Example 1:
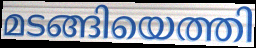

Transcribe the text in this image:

മടങ്ങിയെത്തി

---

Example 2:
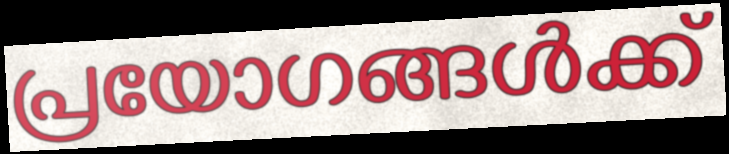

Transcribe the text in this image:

പ്രയോഗങ്ങൾക്ക്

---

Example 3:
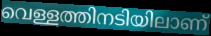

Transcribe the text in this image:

വെള്ളത്തിനടിയിലാണ്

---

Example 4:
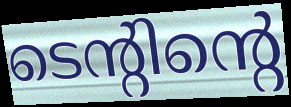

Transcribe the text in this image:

ടെന്റിന്റെ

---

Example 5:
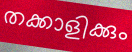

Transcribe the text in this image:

തക്കാളിക്കും